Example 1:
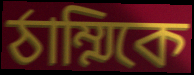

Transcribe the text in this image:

ঠাম্মিকে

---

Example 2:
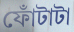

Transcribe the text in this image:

ফোঁটাটা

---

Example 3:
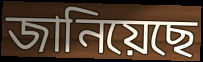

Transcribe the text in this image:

জানিয়েছে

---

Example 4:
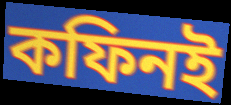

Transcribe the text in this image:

কফিনই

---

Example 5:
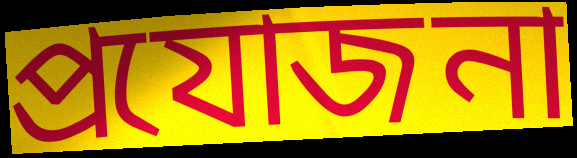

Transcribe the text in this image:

প্রযোজনা